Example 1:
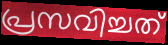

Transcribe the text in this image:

പ്രസവിച്ചത്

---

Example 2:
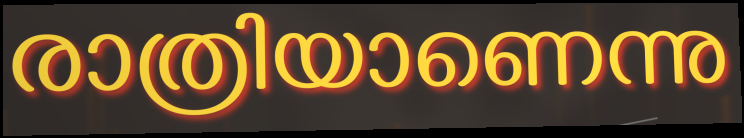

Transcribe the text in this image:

രാത്രിയാണെന്നു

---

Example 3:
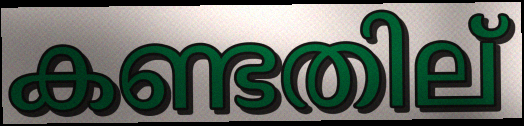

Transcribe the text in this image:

കണ്ടതില്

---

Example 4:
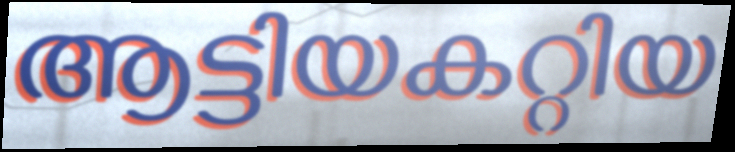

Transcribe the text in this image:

ആട്ടിയകറ്റിയ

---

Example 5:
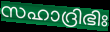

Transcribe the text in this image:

സഹാദ്രിഭിഃ